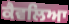
ਕੈਵਲਿਆ